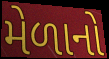
મેળાનો